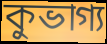
কুভাগ্য